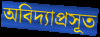
অবিদ্যাপ্রসূত